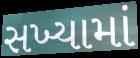
સખ્યામાં